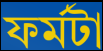
ফর্মটা